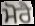
ਮੋਰੈ